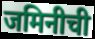
जमिनीची